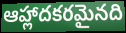
ఆహ్లాదకరమైనది